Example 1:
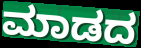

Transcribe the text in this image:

ಮಾಡದ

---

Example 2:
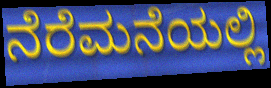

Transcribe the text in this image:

ನೆರೆಮನೆಯಲ್ಲಿ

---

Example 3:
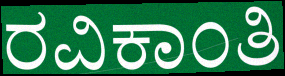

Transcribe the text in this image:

ರವಿಕಾಂತಿ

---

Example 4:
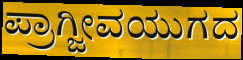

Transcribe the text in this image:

ಪ್ರಾಗ್ಜೀವಯುಗದ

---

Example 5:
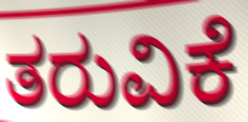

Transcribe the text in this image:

ತರುವಿಕೆ